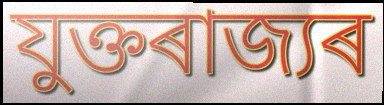
যুক্তৰাজ্যৰ